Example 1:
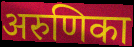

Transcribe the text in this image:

अरुणिका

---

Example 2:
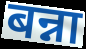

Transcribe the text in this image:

बन्ना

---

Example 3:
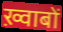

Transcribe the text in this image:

ख़्वाबों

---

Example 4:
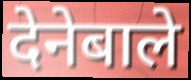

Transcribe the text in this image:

देनेबाले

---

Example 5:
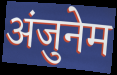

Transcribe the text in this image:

अंजुनेम